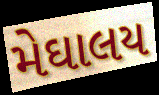
મેઘાલય